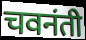
चवनंती